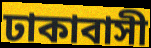
ঢাকাবাসী